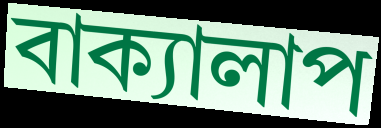
বাক্যালাপ